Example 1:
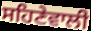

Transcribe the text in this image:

ਸਹਿਣੇਵਾਲੀ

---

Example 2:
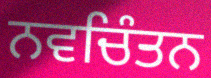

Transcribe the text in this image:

ਨਵਚਿੰਤਨ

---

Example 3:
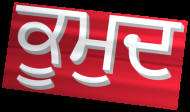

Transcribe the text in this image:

ਕੂਮੁਦ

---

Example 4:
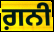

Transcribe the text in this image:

ਗ਼ਨੀ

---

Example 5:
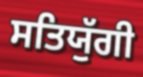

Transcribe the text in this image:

ਸਤਿਯੁੱਗੀ